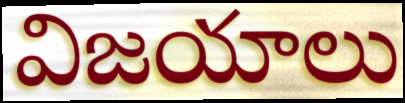
విజయాలు